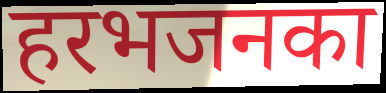
हरभजनका